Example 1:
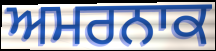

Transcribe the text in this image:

ਅਮਰਨਾਕ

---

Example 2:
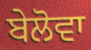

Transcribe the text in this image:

ਬੇਲੋਵਾ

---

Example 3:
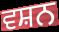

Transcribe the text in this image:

ਵਸ਼ਨ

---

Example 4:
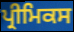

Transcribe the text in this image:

ਪ੍ਰੀਮਿਕਸ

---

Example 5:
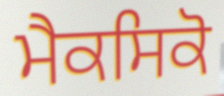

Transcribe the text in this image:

ਮੈਕਸਿਕੋ